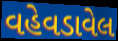
વહેવડાવેલ